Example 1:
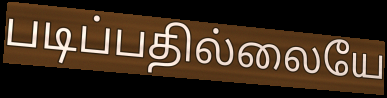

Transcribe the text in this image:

படிப்பதில்லையே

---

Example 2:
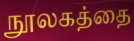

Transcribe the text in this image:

நூலகத்தை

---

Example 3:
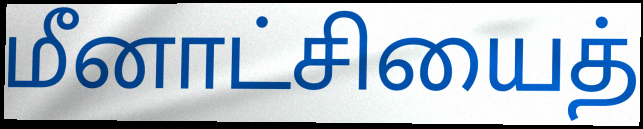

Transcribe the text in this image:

மீனாட்சியைத்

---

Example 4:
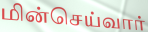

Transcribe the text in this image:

மின்செய்வார்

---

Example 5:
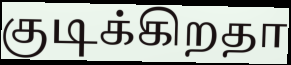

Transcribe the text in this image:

குடிக்கிறதா